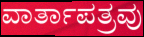
ವಾರ್ತಾಪತ್ರವು